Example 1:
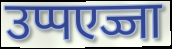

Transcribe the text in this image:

उप्पएज्जा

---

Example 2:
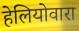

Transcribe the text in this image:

हेलियोवारा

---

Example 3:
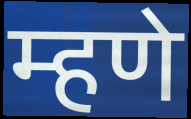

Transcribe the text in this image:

म्हणे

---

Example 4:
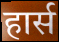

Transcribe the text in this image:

हार्स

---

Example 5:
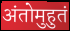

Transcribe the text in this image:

अंतोमुहुतं